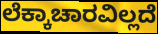
ಲೆಕ್ಕಾಚಾರವಿಲ್ಲದೆ